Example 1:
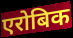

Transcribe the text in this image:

एरोबिक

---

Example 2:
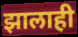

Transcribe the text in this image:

झालाही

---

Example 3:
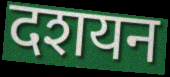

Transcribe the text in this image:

दशयन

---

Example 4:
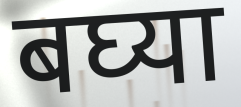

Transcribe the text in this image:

बघ्या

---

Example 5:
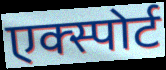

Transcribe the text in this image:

एक्‍स्पोर्ट